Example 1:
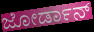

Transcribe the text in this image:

ಜೋರ್ಡಾನ್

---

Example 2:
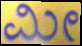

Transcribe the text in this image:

ಮೀ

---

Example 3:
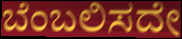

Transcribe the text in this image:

ಬೆಂಬಲಿಸದೇ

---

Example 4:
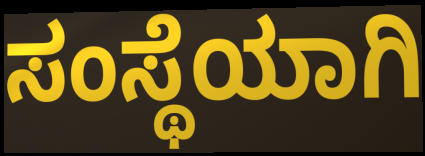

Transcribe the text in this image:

ಸಂಸ್ಥೆಯಾಗಿ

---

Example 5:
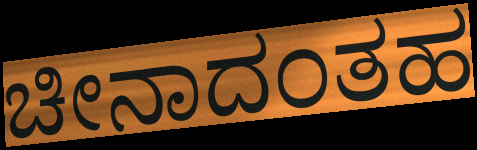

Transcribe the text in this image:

ಚೀನಾದಂತಹ